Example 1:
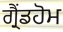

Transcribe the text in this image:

ਗ੍ਰੈਂਡਹੋਮ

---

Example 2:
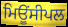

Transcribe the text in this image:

ਮਿਊਂਸੀਪਲ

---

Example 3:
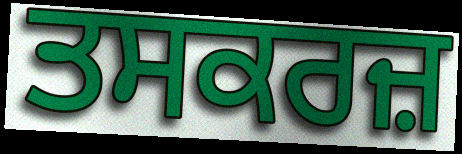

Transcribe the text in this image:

ਤਸਕਰਜ਼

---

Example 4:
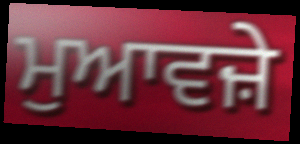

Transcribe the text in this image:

ਮੁਆਵਜ਼ੇ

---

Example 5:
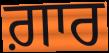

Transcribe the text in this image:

ਗ਼ਾਰ